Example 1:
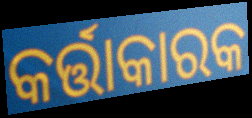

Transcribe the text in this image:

କର୍ତ୍ତାକାରକ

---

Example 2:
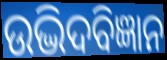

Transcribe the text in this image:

ଉଦ୍ଭିଦବିଜ୍ଞାନ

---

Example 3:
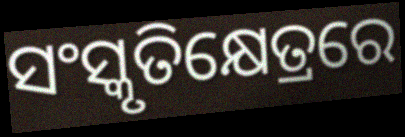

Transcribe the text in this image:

ସଂସ୍କୃତିକ୍ଷେତ୍ରରେ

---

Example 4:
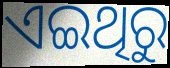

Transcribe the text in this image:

ଏଇଥିରୁ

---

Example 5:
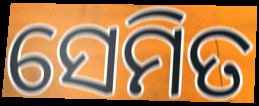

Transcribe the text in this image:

ସେମିତ